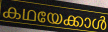
കഥയേക്കാൾ